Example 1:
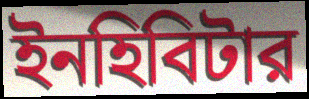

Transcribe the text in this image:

ইনহিবিটার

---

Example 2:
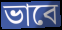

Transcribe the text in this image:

ভাবে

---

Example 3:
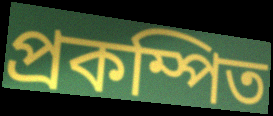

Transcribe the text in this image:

প্রকম্পিত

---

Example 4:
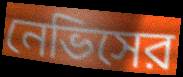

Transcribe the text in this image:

নেভিসের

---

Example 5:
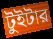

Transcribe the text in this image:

টুইটার